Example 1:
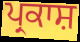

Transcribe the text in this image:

ਪ੍ਰਕਾਸ਼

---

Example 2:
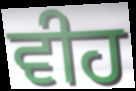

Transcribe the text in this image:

ਵੀਹ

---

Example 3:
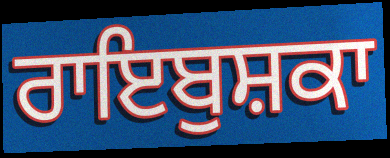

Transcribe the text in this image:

ਰਾਇਬੁਸ਼ਕਾ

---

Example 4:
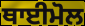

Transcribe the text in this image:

ਥਾਈਮੋਲ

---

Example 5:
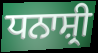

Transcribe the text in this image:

ਧਨਾਸ਼੍ਰੀ